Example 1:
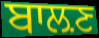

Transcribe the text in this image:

ਬਾਲ਼ਣ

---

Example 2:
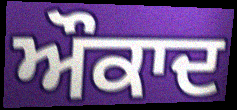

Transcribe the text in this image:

ਔਕਾਦ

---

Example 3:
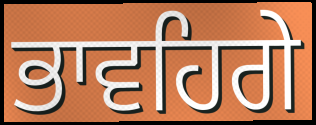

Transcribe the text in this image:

ਭਾਵਹਿਗੇ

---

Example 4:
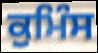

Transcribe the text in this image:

ਕੁਮਿੰਸ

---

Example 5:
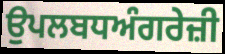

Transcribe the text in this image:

ਉਪਲਬਧਅੰਗਰੇਜ਼ੀ